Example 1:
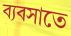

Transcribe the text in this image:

ব্যবসাতে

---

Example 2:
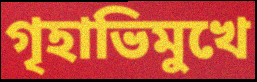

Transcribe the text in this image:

গৃহাভিমুখে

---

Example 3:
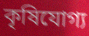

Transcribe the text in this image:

কৃষিযোগ্য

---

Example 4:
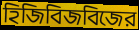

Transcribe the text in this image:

হিজিবিজবিজের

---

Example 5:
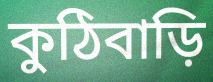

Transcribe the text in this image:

কুঠিবাড়ি